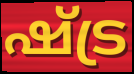
ഷ്ട്ര